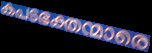
കപടഭക്തന്മാരെ